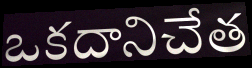
ఒకదానిచేత